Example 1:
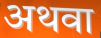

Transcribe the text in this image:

अथवा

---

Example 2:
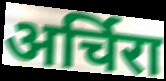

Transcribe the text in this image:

अर्चिरा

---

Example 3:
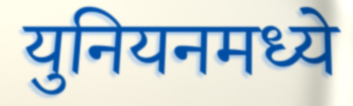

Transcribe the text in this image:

युनियनमध्ये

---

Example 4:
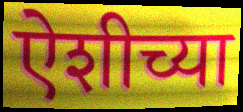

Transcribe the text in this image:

ऐशीच्या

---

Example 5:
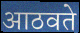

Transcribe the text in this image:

आठवते